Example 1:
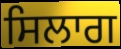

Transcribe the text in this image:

ਸਿਲਾਗ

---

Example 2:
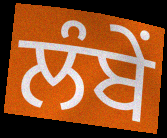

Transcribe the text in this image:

ਲੰਬੇਂ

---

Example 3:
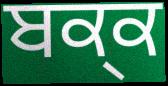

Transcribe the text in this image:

ਬਕ੍ਕ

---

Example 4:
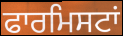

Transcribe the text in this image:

ਫਾਰਮਿਸਟਾਂ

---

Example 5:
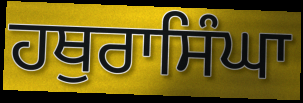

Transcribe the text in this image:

ਹਥੁਰਾਸਿੰਘਾ